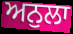
ਅਨੁਲਾ